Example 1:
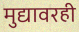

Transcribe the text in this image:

मुद्यावरही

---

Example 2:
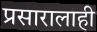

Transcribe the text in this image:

प्रसारालाही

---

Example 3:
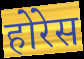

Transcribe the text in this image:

होरेस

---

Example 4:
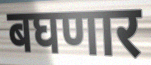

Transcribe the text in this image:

बघणार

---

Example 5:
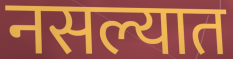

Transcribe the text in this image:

नसल्यात